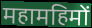
महामहिमों